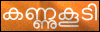
കണ്ണുകൂടി